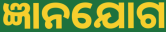
ଜ୍ଞାନଯୋଗ